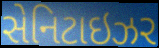
સેનિટાઇઝર